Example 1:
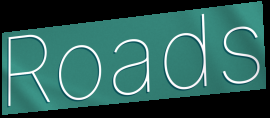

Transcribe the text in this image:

Roads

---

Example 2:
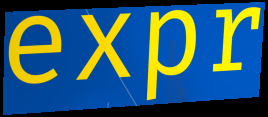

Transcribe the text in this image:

expr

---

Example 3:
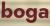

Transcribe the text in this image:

boga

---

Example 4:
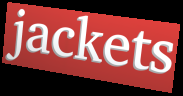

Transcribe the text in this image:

jackets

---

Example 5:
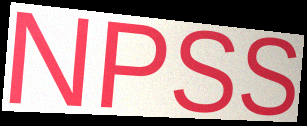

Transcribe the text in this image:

NPSS